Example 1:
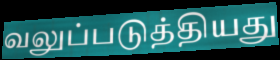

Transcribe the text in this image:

வலுப்படுத்தியது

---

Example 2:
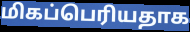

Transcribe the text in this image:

மிகப்பெரியதாக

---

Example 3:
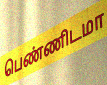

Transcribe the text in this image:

பெண்ணிடமா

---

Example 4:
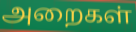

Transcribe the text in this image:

அறைகள்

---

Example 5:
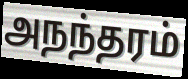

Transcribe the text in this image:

அநந்தரம்